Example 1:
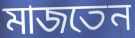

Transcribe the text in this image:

মাজতেন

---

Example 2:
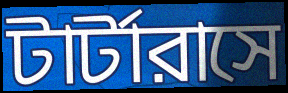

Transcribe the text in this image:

টার্টারাসে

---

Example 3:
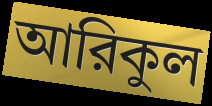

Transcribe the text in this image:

আরিকুল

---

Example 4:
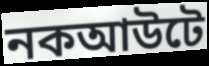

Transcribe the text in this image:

নকআউটে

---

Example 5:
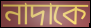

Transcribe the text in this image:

নাদাকে